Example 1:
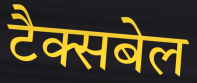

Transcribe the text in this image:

टैक्सबेल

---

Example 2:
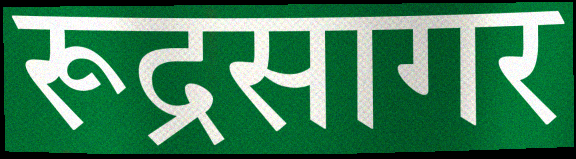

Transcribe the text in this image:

रूद्रसागर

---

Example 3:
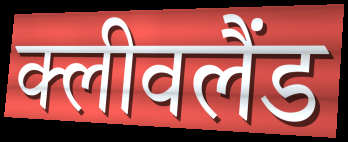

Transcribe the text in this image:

क्लीवलैंड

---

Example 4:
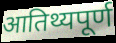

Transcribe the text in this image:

आतिथ्यपूर्ण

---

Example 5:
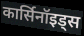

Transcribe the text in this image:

कार्सिनॉइड्स